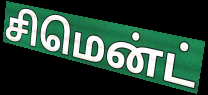
சிமென்ட்